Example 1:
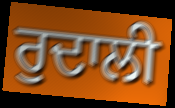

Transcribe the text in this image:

ਰੁਦਾਲੀ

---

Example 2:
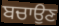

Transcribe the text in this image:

ਬਚਾਉਣ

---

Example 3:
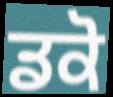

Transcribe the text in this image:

ਡਕੋ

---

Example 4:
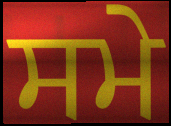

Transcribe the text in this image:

ਸਮੇ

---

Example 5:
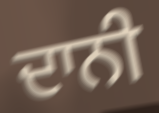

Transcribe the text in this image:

ਦਾਨੀ